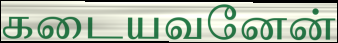
கடையவனேன்